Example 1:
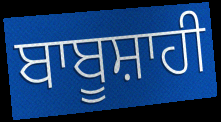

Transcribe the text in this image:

ਬਾਬੂਸ਼ਾਹੀ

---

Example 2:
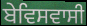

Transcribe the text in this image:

ਬੇਵਿਸਵਾਸੀ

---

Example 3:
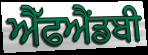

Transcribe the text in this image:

ਐੱਫਐਂਡਬੀ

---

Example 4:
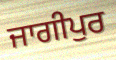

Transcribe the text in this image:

ਜਾਗੀਪੁਰ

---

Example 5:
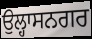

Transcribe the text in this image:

ਉਲ੍ਹਾਸਨਗਰ